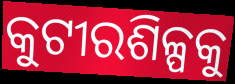
କୁଟୀରଶିଳ୍ପକୁ